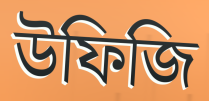
উফিজি